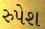
રુપેશ